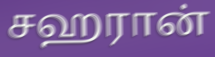
சஹரான்